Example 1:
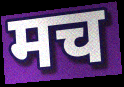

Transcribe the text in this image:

मच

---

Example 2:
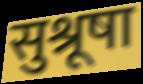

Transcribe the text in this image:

सुश्रूषा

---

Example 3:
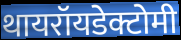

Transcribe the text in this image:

थायरॉयडेक्टोमी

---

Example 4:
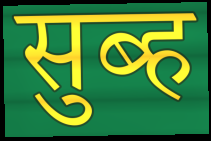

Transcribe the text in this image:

सुब्ह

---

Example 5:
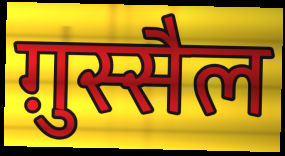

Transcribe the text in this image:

ग़ुस्सैल